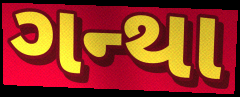
ગન્થા